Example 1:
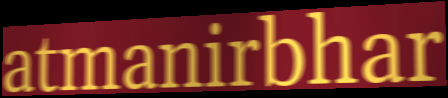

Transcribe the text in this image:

atmanirbhar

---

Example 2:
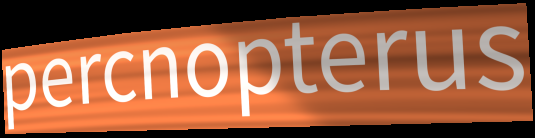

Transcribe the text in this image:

percnopterus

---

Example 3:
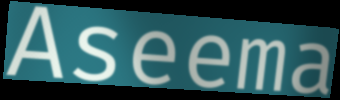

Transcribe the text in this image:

Aseema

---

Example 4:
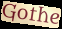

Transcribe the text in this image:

Gothe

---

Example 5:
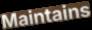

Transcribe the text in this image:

Maintains